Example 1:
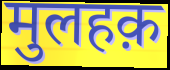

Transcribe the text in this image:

मुलहक़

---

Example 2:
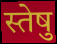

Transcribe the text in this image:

स्तेषु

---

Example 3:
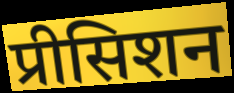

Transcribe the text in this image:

प्रीसिशन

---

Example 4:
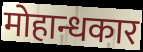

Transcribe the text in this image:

मोहान्धकार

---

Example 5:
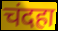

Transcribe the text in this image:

चंदहा